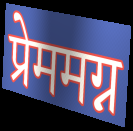
प्रेममग्न